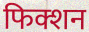
फिक्‍शन